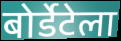
बोर्डेटेला